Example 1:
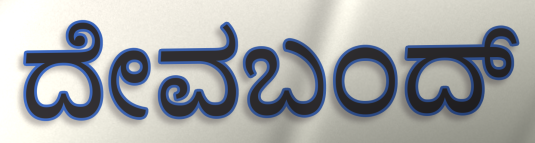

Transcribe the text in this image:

ದೇವಬಂದ್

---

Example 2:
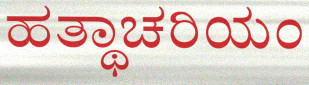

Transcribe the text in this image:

ಹತ್ಥಾಚರಿಯಂ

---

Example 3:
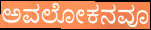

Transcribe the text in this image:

ಅವಲೋಕನವೂ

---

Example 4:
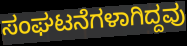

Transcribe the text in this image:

ಸಂಘಟನೆಗಳಾಗಿದ್ದವು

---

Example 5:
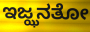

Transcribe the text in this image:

ಇಜ್ಝನತೋ